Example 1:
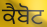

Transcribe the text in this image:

ਕੈਬੋਟ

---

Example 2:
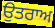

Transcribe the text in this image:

ਉਤਰਾਅ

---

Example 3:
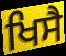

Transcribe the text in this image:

ਖਿਸੈ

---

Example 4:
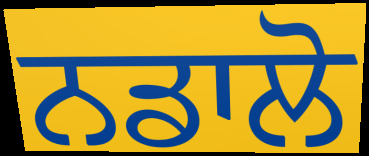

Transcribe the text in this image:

ਨਡਾਲੋ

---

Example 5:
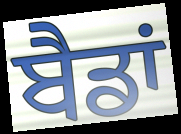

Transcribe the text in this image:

ਬੈਡਾਂ